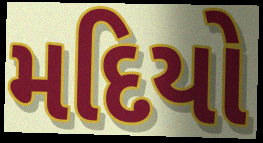
મદિયો